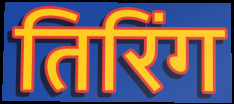
तिरिंग